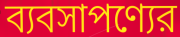
ব্যবসাপণ্যের